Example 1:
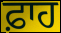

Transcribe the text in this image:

ਫ਼ਾਹ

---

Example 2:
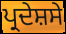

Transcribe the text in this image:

ਪ੍ਰਦੇਸ਼ਸੇ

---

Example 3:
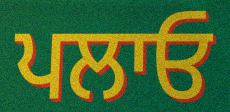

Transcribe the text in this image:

ਪਲਾਓ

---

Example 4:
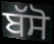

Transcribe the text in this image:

ਬੱਸੋ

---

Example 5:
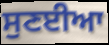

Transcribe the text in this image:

ਸੁਣਈਆ